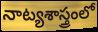
నాట్యశాస్త్రంలో